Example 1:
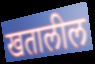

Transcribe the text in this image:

खतालील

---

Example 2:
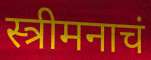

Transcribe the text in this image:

स्त्रीमनाचं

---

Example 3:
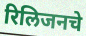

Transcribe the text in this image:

रिलिजनचे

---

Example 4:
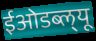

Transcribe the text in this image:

ईओडब्ल्यू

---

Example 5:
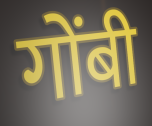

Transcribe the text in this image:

गोंबी